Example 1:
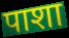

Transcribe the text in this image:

पाशा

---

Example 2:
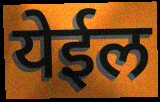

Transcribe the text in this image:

येईल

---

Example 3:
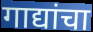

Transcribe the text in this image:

गाद्यांचा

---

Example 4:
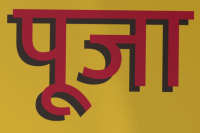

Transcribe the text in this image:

पूजा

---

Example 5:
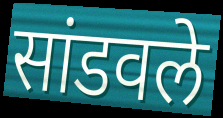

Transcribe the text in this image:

सांडवले